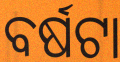
ବର୍ଷଟା